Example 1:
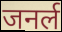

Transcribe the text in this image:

जनर्ल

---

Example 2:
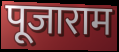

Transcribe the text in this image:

पूजाराम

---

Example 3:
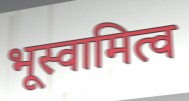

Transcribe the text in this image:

भूस्वामित्व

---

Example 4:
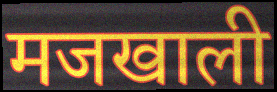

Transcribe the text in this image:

मजखाली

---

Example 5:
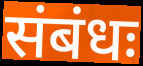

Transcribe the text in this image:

संबंधः